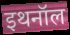
इथनॉल